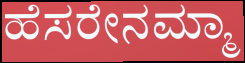
ಹೆಸರೇನಮ್ಮಾ